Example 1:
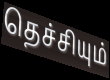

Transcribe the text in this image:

தெச்சியும்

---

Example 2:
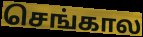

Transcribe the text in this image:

செங்கால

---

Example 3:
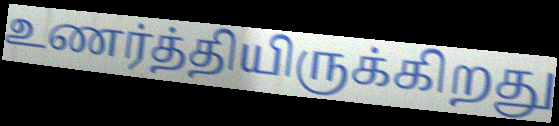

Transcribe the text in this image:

உணர்த்தியிருக்கிறது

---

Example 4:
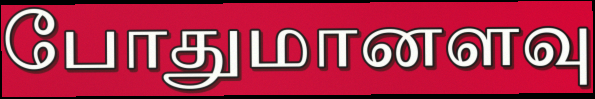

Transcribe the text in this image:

போதுமானளவு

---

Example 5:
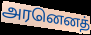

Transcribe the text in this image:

அரனெனத்